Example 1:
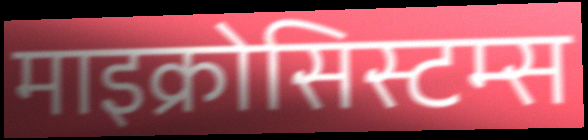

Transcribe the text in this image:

माइक्रोसिस्टम्स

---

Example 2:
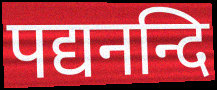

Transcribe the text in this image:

पद्यनन्दि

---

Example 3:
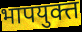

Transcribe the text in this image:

भापयुक्त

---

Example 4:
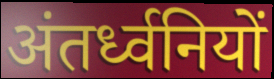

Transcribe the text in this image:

अंतर्ध्वनियों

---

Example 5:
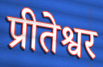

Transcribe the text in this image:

प्रीतेश्वर